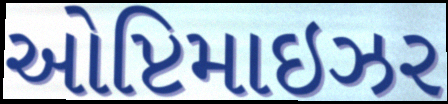
ઓપ્ટિમાઇઝર